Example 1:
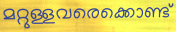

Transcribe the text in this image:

മറ്റുള്ളവരെക്കൊണ്ട്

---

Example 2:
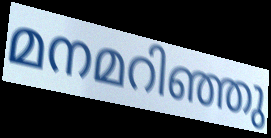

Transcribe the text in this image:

മനമറിഞ്ഞു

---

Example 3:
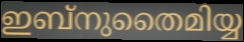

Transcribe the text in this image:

ഇബ്നുതൈമിയ്യ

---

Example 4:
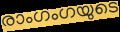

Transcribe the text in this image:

രാംഗംഗയുടെ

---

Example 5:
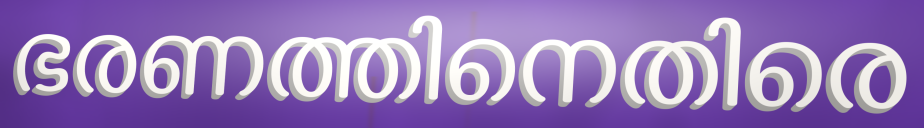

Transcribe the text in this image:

ഭരണത്തിനെതിരെ